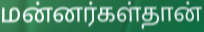
மன்னர்கள்தான்